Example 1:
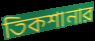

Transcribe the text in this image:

তিকশানার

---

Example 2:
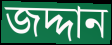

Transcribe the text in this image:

জদ্দান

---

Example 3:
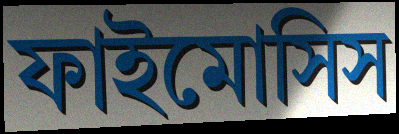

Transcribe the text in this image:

ফাইমোসিস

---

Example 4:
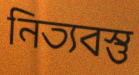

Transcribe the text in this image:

নিত্যবস্তু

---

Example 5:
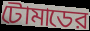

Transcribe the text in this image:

টোমাডের